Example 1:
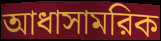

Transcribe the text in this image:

আধাসামরিক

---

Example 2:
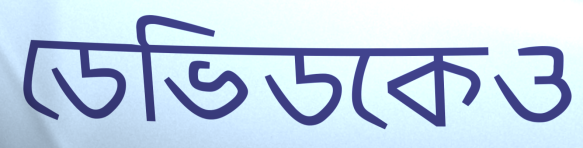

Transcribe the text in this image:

ডেভিডকেও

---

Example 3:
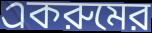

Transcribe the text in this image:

একরুমের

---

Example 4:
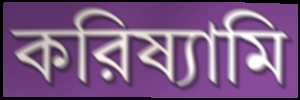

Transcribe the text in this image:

করিষ্যামি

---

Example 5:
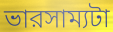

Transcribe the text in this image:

ভারসাম্যটা